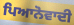
ਪਿਆਨੋਵਾਦੀ